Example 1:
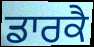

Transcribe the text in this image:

ਡਾਰਕੈ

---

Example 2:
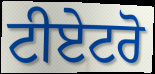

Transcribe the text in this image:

ਟੀਏਟਰੋ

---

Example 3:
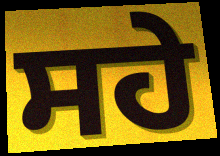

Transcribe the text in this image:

ਸਹੇ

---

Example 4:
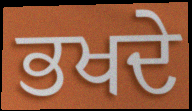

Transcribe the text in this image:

ਭਖਦੇ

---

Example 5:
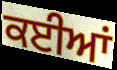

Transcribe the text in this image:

ਕਈਆਂ